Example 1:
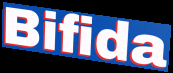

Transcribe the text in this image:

Bifida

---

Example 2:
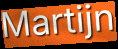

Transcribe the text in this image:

Martijn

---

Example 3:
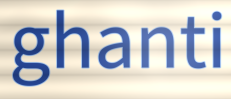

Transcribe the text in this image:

ghanti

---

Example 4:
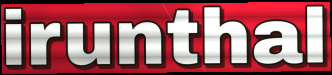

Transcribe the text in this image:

irunthal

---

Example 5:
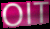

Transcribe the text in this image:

OIT